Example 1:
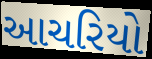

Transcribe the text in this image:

આચરિયો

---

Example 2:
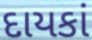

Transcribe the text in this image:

દાયકાં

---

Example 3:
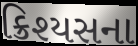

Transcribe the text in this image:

ક્રિશ્યસના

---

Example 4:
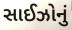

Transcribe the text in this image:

સાઈઝોનું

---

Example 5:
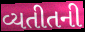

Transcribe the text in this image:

વ્યતીતની